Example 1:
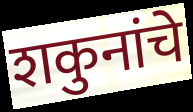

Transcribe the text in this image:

शकुनांचे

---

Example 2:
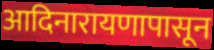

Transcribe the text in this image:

आदिनारायणापासून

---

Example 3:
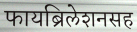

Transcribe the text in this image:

फायब्रिलेशनसह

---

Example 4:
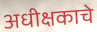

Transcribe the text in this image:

अधीक्षकाचे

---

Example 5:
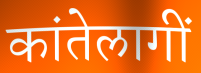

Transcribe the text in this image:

कांतेलागीं